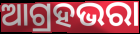
ଆଗ୍ରହଭରା